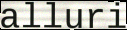
alluri